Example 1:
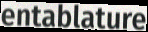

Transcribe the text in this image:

entablature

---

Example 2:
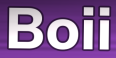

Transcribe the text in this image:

Boii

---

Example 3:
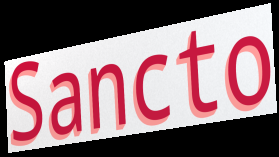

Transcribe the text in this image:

Sancto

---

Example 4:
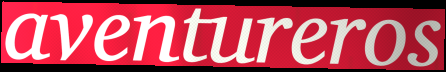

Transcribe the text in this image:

aventureros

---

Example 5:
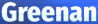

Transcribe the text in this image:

Greenan